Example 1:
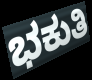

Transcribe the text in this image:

ಭಕುತಿ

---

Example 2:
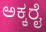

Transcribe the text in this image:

ಅಕ್ಕರೈ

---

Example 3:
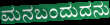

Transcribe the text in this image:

ಮನಬಂದುದನು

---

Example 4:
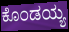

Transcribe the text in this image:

ಕೊಂಡಯ್ಯ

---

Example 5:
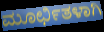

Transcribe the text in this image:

ಮೂರ್ಛಿತಳಾಗಿ